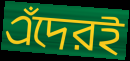
এঁদেরই